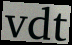
vdt